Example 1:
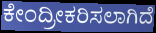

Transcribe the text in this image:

ಕೇಂದ್ರೀಕರಿಸಲಾಗಿದೆ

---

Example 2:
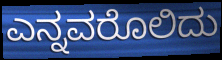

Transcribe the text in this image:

ಎನ್ನವರೊಲಿದು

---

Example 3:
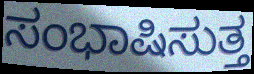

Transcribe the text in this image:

ಸಂಭಾಷಿಸುತ್ತ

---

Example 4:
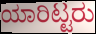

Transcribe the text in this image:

ಯಾರಿಟ್ಟರು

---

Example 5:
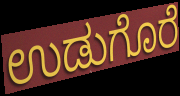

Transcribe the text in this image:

ಉಡುಗೊರೆ